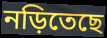
নড়িতেছে